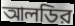
আলডির